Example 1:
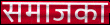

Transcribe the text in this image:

समाजका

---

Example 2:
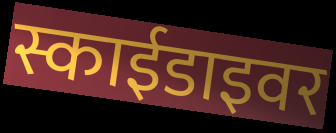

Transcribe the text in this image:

स्काईडाइवर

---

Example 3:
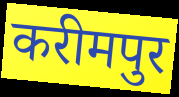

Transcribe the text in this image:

करीमपुर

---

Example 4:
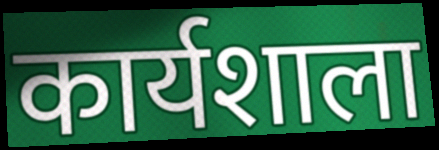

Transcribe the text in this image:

कार्यशाला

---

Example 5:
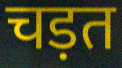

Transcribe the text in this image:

चड़त